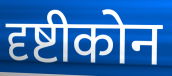
दृष्टीकोन